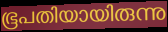
ഭൂപതിയായിരുന്നു